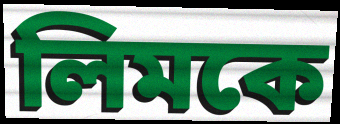
লিমকে